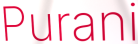
Purani